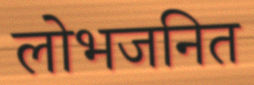
लोभजनित